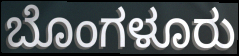
ಬೊಂಗಳೂರು